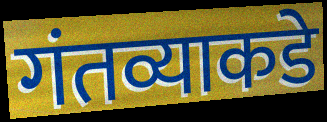
गंतव्याकडे